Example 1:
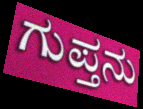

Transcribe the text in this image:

ಗುಪ್ತನು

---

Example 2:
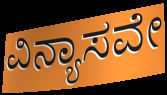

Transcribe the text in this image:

ವಿನ್ಯಾಸವೇ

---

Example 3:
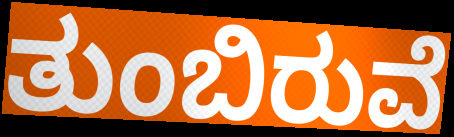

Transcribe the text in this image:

ತುಂಬಿರುವೆ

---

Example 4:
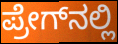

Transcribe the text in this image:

ಪ್ರೇಗ್‌ನಲ್ಲಿ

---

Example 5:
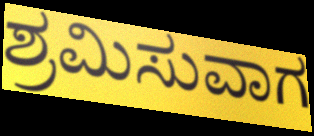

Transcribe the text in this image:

ಶ್ರಮಿಸುವಾಗ